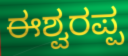
ಈಶ್ವರಪ್ಪ